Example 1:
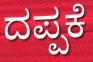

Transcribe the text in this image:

ದಪ್ಪಕೆ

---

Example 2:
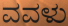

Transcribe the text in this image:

ವವಳು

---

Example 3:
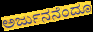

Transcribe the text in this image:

ಅರ್ಜುನನೆಂದೂ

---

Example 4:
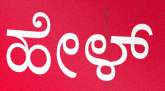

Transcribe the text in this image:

ಹೇಳ್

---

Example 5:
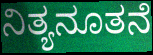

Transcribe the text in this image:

ನಿತ್ಯನೂತನೆ